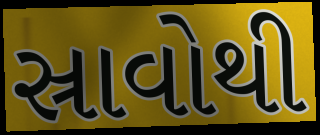
સ્રાવોથી